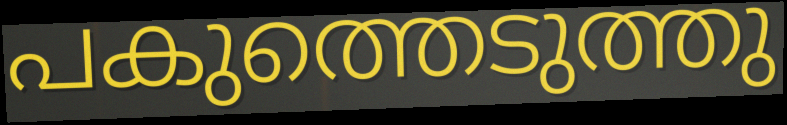
പകുത്തെടുത്തു